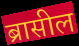
ब्रासील